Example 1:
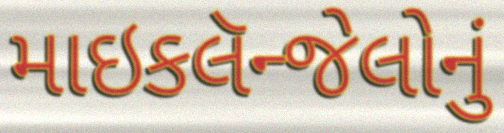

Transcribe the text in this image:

માઇકલૅન્જેલોનું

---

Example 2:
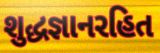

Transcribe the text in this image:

શુદ્ધજ્ઞાનરહિત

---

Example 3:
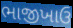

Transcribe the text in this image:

ભાજીખાઉ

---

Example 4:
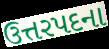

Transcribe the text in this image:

ઉત્તરપદના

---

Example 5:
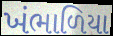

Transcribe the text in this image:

ખંભાળિયા